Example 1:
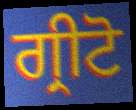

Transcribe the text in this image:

ਗ੍ਰੀਟੋ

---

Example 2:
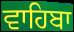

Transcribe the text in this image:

ਵਾਹਿਬਾ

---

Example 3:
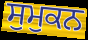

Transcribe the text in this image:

ਸੁਮੁਕਨ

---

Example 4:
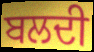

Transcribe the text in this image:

ਬਲਦੀ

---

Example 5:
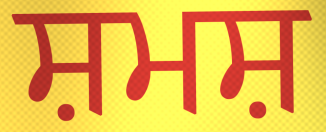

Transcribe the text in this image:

ਸ਼ਮਸ਼